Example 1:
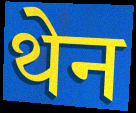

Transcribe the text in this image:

थेन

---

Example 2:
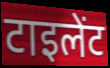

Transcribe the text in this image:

टाइलेंट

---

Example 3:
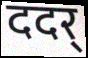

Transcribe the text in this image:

ददर्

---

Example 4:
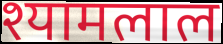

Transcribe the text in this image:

श्यामलाल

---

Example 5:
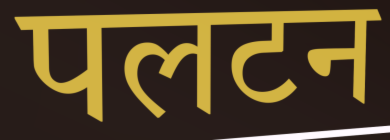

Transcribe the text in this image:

पलटन